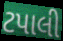
ટપાલી